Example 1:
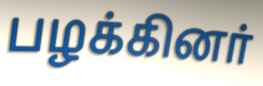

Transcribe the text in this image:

பழக்கினர்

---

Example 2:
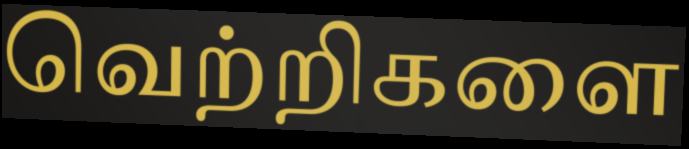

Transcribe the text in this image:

வெற்றிகளை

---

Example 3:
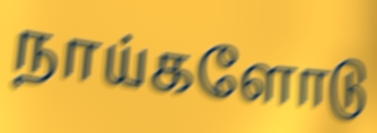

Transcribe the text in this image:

நாய்களோடு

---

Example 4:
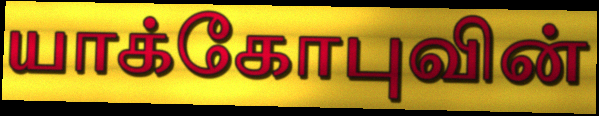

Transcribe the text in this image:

யாக்கோபுவின்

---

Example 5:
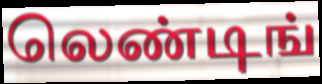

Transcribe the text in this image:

லெண்டிங்